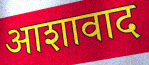
आशावाद